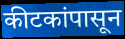
कीटकांपासून